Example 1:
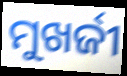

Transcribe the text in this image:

ମୁଖର୍ଜୀ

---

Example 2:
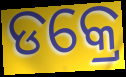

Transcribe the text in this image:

ଡକ୍ରେ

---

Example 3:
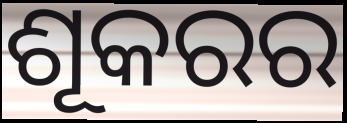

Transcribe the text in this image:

ଶୂକରର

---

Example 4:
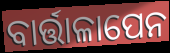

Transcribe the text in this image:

ବାର୍ତ୍ତାଳାପେନ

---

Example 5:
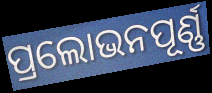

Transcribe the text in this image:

ପ୍ରଲୋଭନପୂର୍ଣ୍ଣ